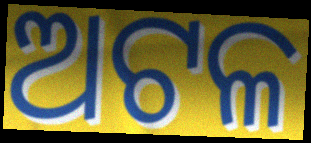
ଅଟଳ